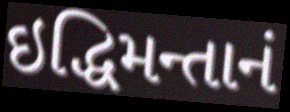
ઇદ્ધિમન્તાનં